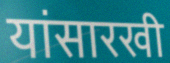
यांसारखी